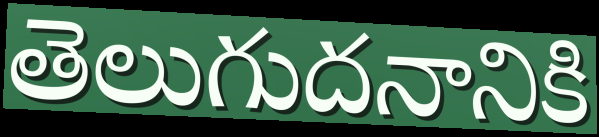
తెలుగుదనానికి